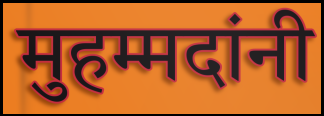
मुहम्मदांनी